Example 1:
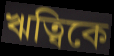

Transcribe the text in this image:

ঋত্বিকে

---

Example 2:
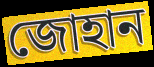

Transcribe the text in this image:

জোহান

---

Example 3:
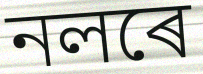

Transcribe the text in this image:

নলৰে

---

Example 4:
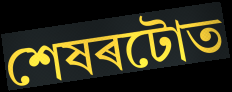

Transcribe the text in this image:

শেষৰটোত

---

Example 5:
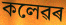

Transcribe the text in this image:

কলেৱৰ